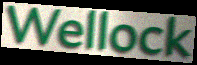
Wellock